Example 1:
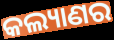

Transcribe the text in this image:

କଲ୍ୟାଣର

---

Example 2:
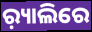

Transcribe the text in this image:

ର଼୍ୟାଲିରେ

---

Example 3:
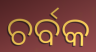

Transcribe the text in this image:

ଚର୍ବକ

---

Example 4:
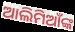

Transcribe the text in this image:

ଆଲିମିଆଁଙ୍କ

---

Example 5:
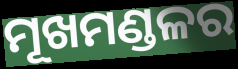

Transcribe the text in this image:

ମୂଖମଣ୍ଡଳର